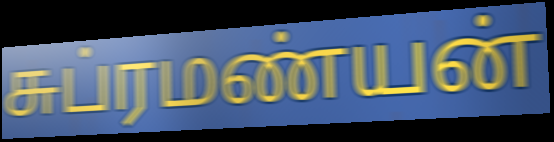
சுப்ரமண்யன்